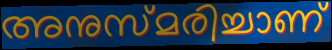
അനുസ്മരിച്ചാണ്